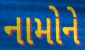
નામોને